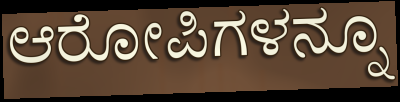
ಆರೋಪಿಗಳನ್ನೂ